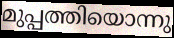
മുപ്പത്തിയൊന്നു